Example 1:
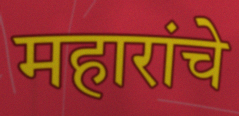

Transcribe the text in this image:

महारांचे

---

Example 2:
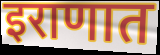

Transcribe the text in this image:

इराणात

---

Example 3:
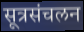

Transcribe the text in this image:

सूत्रसंचलन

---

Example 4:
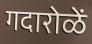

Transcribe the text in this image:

गदारोळें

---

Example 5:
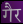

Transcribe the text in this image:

गैर